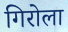
गिरोला